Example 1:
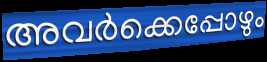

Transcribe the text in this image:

അവർക്കെപ്പോഴും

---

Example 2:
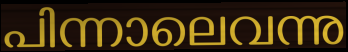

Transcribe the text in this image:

പിന്നാലെവന്നു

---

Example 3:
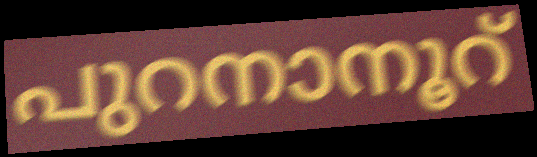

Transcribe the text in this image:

പുറനാനൂറ്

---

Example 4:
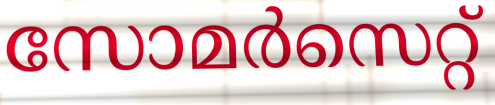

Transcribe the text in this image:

സോമർസെറ്റ്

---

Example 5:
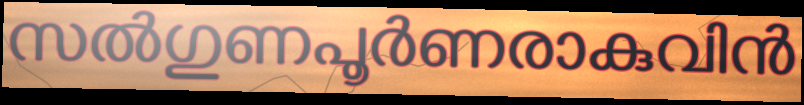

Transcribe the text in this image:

സൽഗുണപൂർണരാകുവിൻ